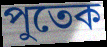
পুতেক